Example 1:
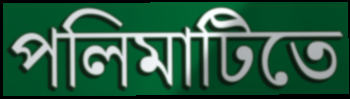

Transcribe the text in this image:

পলিমাটিতে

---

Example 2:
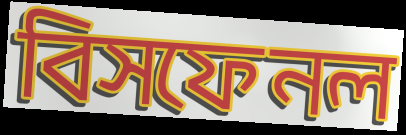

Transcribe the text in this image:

বিসফেনল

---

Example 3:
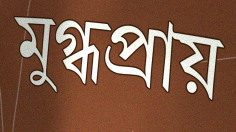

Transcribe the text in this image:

মুগ্ধপ্রায়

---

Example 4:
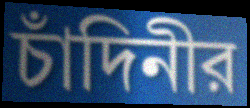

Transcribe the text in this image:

চাঁদিনীর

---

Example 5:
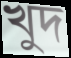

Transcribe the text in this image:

খুদ